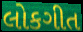
લોકગીત